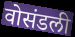
वोसंडली